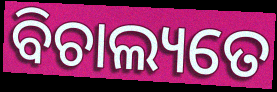
ବିଚାଲ୍ୟତେ